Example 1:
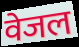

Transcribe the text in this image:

वेजल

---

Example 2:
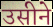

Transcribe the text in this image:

उसीने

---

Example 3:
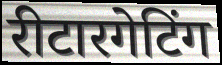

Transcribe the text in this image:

रीटारगेटिंग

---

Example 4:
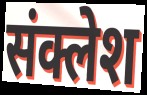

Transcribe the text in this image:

संक्लेश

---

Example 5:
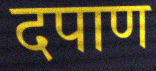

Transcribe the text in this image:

दपाण